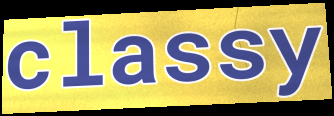
classy